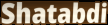
Shatabdi